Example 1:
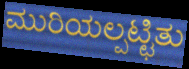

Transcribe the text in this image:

ಮುರಿಯಲ್ಪಟ್ಟಿತು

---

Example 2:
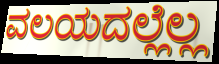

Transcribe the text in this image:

ವಲಯದಲ್ಲೆಲ್ಲ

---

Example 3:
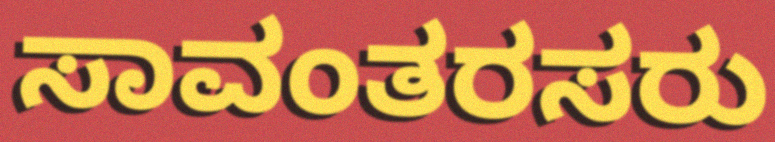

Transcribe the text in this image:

ಸಾವಂತರಸರು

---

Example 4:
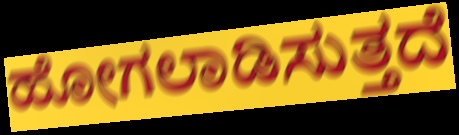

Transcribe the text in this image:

ಹೋಗಲಾಡಿಸುತ್ತದೆ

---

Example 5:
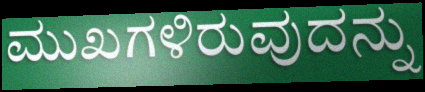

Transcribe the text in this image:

ಮುಖಗಳಿರುವುದನ್ನು